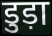
डुड़ा